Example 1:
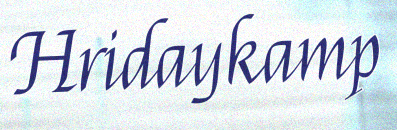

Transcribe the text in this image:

Hridaykamp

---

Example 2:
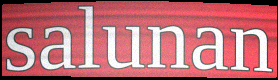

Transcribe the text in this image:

salunan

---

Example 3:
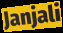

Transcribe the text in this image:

Janjali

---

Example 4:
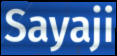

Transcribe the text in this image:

Sayaji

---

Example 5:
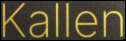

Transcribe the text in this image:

Kallen